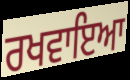
ਰਖਵਾਇਆ